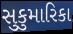
સુકુમારિકા